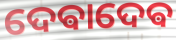
ଦେଵାଦେଵ